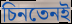
চিনতেনই